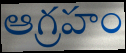
ఆగ్రహం